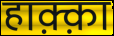
हाक़्क़ा